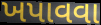
ખપાવવા